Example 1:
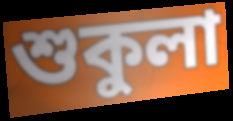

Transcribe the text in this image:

শুকুলা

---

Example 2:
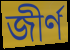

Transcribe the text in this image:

জীৰ্ণ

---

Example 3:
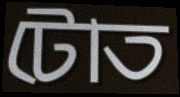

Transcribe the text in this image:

টোত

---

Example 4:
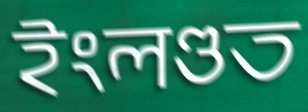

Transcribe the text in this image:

ইংলণ্ডত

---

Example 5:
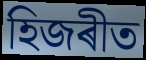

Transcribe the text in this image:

হিজৰীত